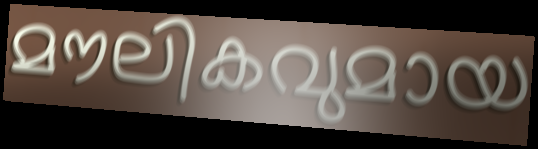
മൗലികവുമായ